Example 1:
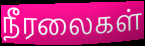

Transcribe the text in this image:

நீரலைகள்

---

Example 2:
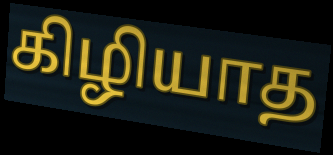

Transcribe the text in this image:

கிழியாத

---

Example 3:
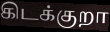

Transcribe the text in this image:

கிடக்குறா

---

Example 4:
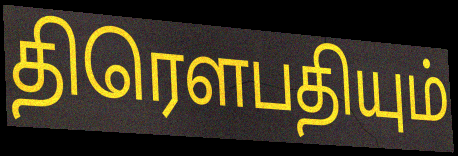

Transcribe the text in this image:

திரெளபதியும்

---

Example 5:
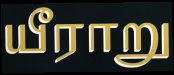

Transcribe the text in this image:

யீராறு